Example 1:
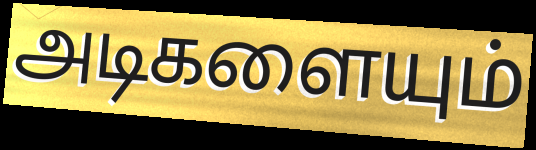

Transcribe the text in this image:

அடிகளையும்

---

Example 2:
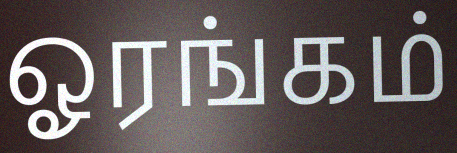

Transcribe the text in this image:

ஓரங்கம்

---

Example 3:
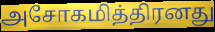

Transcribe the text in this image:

அசோகமித்திரனது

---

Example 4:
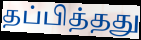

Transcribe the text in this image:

தப்பித்தது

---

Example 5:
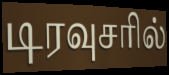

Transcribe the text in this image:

டிரவுசரில்